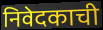
निवेदकाची